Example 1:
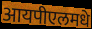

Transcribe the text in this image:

आयपीएलमधे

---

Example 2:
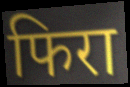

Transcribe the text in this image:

फिरा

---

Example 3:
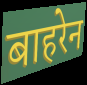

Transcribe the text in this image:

बाहरेन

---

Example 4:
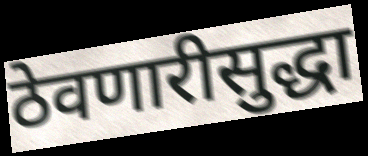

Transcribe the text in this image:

ठेवणारीसुद्धा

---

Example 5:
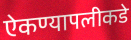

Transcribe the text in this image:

ऐकण्यापलीकडे